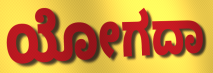
ಯೋಗದಾ